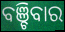
ବଞ୍ଚିବାର